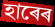
হাৰেৰ